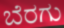
ಬೆರಗು